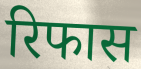
रिफास